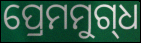
ପ୍ରେମମୁଗ୍‌ଧ